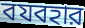
বযবহার